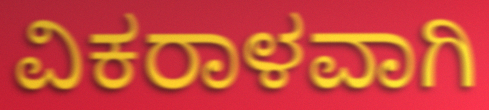
ವಿಕರಾಳವಾಗಿ